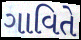
ગાવિતે